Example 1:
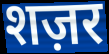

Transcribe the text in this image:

शज़र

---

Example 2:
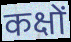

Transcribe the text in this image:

कक्षों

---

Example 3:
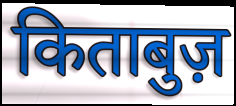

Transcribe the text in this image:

किताबुज़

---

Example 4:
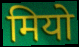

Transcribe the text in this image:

मियो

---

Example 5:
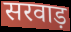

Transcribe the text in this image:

सरवाड़